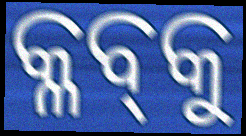
କ୍ଳବ୍‍କୁ